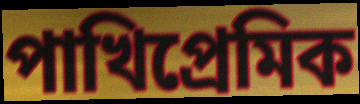
পাখিপ্রেমিক